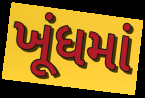
ખૂંધમાં